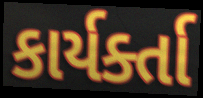
કાર્યર્ક્તા